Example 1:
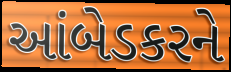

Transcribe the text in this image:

આંબેડકરને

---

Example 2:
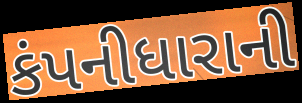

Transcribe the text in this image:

કંપનીધારાની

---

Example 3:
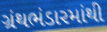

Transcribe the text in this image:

ગ્રંથભંડારમાંથી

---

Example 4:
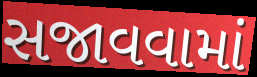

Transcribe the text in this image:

સજાવવામાં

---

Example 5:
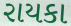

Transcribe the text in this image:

રાયકા